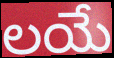
లయే